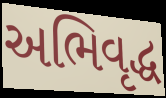
અભિવૃદ્ધ